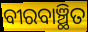
ବୀରବାଞ୍ଛିତ